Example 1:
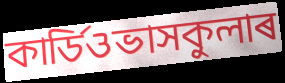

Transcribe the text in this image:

কাৰ্ডিওভাসকুলাৰ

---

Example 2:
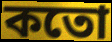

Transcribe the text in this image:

কতো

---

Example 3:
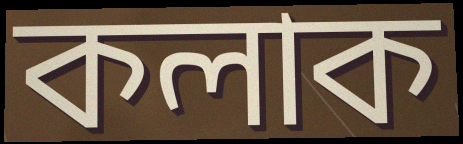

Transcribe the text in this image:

কলাক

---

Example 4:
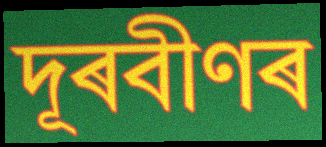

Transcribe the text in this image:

দূৰবীণৰ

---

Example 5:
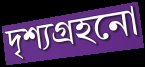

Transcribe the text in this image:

দৃশ্যগ্ৰহনো